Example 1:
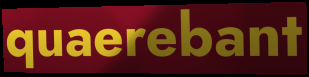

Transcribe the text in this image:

quaerebant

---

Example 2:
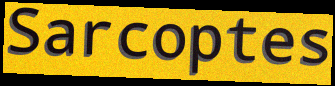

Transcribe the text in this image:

Sarcoptes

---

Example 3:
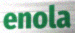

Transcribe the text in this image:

enola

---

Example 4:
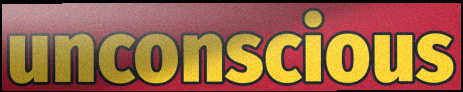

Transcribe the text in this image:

unconscious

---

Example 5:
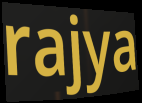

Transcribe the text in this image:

rajya